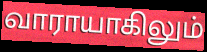
வாராயாகிலும்